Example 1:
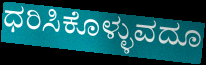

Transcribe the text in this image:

ಧರಿಸಿಕೊಳ್ಳುವದೂ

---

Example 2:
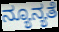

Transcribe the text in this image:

ನ್ಯೂನ್ಯತೆ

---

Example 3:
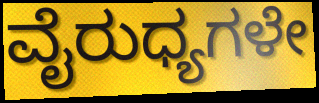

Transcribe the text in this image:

ವೈರುಧ್ಯಗಳೇ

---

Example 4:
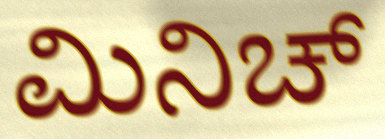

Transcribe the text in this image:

ಮಿನಿಚ್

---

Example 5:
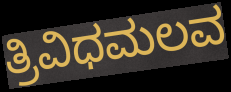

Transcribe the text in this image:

ತ್ರಿವಿಧಮಲವ